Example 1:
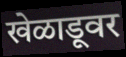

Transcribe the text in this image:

खेळाडूवर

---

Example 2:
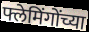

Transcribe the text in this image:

फ्लेमिंगोंच्या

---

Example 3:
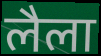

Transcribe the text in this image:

लैला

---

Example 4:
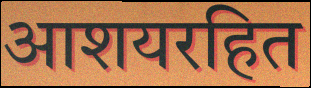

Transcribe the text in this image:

आशयरहित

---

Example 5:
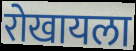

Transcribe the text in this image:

रोखायला